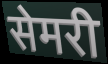
सेमरी